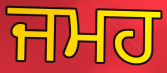
ਜਮਹ